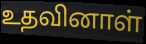
உதவினாள்